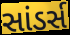
સાંડર્સ